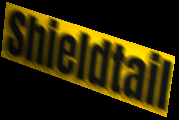
Shieldtail